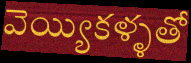
వెయ్యికళ్ళతో